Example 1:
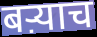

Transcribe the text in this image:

बऱ्‍याच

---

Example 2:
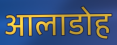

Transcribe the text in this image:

आलाडोह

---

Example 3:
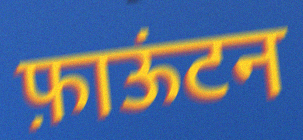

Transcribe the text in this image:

फ़ाऊंटन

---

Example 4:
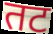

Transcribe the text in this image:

तट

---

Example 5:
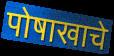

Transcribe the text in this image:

पोषाखाचे